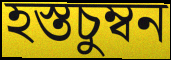
হস্তচুম্বন